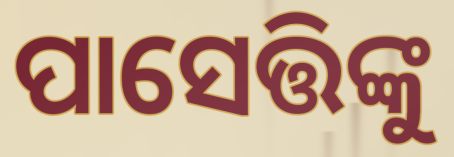
ପାସେତ୍ତିଙ୍କୁ